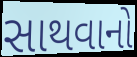
સાથવાનો